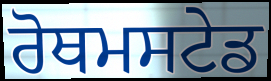
ਰੋਥਮਸਟੇਡ